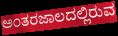
ಅಂತರಜಾಲದಲ್ಲಿರುವ